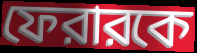
ফেরারকে